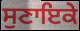
ਸੁਣਾਇਕੇ